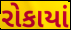
રોકાયાં